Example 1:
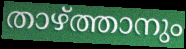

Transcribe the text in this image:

താഴ്ത്താനും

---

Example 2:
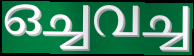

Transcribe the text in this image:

ഒച്ചവച്ച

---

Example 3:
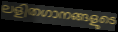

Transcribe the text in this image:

ലളിതഗാനങ്ങളുടെ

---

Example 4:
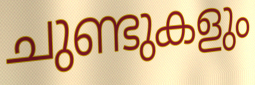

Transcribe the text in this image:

ചുണ്ടുകളും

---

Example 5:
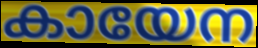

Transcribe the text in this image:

കായേന